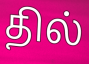
தில்